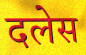
दलेस